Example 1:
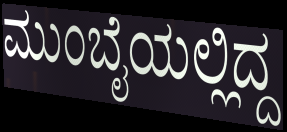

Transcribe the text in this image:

ಮುಂಬೈಯಲ್ಲಿದ್ದ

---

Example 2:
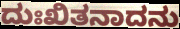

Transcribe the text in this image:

ದುಃಖಿತನಾದನು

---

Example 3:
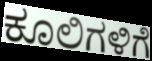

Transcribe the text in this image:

ಕೂಲಿಗಳಿಗೆ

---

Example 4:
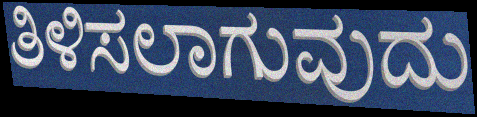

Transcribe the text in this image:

ತಿಳಿಸಲಾಗುವುದು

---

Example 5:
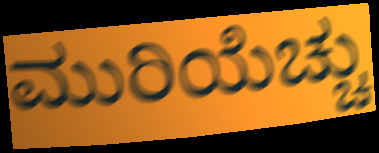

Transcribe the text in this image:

ಮುರಿಯೆಚ್ಚು